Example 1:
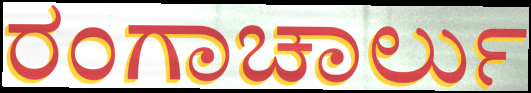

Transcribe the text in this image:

ರಂಗಾಚಾರ್ಲು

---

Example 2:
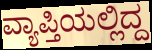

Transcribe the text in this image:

ವ್ಯಾಪ್ತಿಯಲ್ಲಿದ್ದ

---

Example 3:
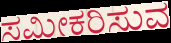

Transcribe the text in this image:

ಸಮೀಕರಿಸುವ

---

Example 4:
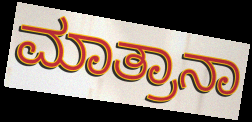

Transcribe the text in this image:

ಮಾತ್ರಾನಾ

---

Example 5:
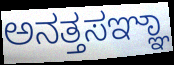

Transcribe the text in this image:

ಅನತ್ತಸಞ್ಞಾ